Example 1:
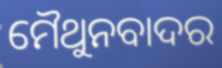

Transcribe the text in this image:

ମୈଥୁନବାଦର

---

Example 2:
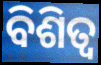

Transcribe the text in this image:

ବିଶିତ୍ଵ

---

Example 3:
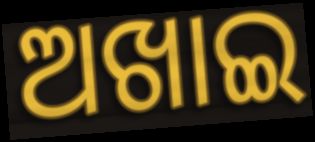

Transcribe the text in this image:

ଅଖାଇ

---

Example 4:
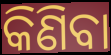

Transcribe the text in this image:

କିଣିବା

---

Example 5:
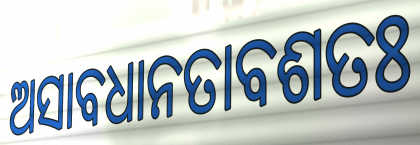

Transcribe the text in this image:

ଅସାବଧାନତାବଶତଃ